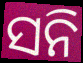
ସନି